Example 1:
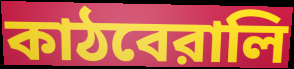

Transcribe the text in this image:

কাঠবেরালি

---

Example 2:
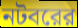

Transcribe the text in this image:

নটবরের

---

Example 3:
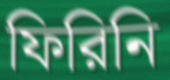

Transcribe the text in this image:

ফিরিনি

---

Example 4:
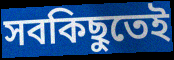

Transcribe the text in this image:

সবকিছুতেই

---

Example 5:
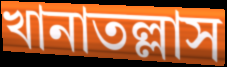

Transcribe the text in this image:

খানাতল্লাস